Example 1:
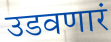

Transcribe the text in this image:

उडवणारं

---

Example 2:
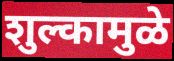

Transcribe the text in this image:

शुल्कामुळे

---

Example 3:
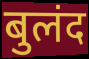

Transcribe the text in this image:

बुलंद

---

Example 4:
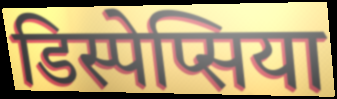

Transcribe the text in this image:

डिस्पेप्सिया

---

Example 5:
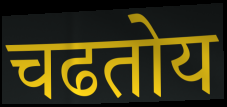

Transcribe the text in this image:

चढतोय